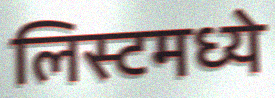
लिस्टमध्ये